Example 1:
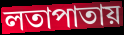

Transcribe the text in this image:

লতাপাতায়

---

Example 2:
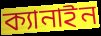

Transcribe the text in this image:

ক্যানাইন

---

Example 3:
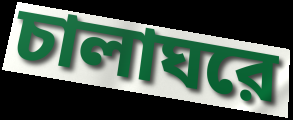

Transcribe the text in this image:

চালাঘরে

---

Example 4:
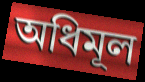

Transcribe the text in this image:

অধিমূল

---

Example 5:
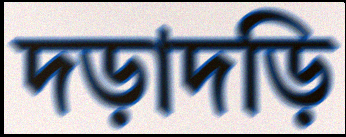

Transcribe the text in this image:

দড়াদড়ি